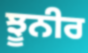
ਝੂਨੀਰ